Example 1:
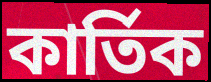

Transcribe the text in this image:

কাৰ্তিক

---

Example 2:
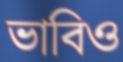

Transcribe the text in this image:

ভাবিও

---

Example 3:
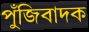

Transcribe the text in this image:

পুঁজিবাদক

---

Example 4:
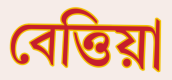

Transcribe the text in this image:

বেত্তিয়া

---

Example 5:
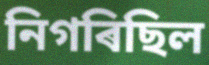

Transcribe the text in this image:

নিগৰিছিল